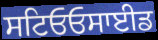
ਸਟਿਓਓਸਾਈਡ